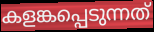
കളങ്കപ്പെടുന്നത്